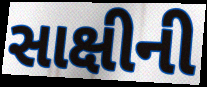
સાક્ષીની